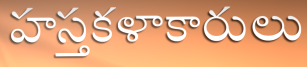
హస్తకళాకారులు